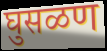
घुसळण